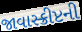
જાવાસ્ક્રીપ્ટની